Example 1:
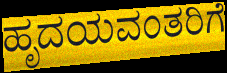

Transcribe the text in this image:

ಹೃದಯವಂತರಿಗೆ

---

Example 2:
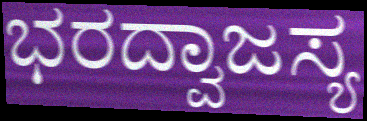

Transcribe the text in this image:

ಭರದ್ವಾಜಸ್ಯ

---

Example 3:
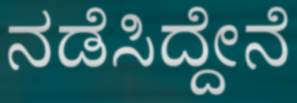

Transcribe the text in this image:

ನಡೆಸಿದ್ದೇನೆ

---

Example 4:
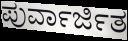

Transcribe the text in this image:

ಪುರ್ವಾರ್ಜಿತ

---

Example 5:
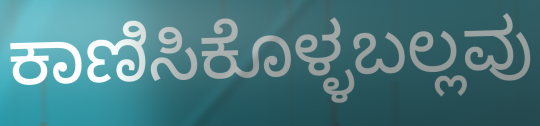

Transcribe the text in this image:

ಕಾಣಿಸಿಕೊಳ್ಳಬಲ್ಲವು